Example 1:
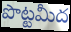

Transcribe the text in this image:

పొట్టమీద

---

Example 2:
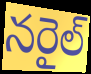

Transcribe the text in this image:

నరైల్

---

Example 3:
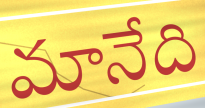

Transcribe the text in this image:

మానేది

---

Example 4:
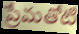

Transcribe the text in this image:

ప్రేమతోటి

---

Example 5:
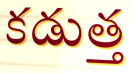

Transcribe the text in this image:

కడుత్త